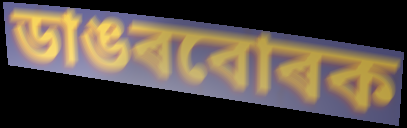
ডাঙৰবোৰক